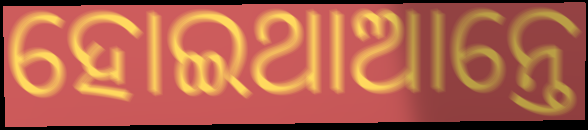
ହୋଇଥାଆନ୍ତେ